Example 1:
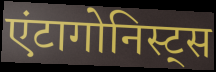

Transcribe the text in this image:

एंटागोनिस्ट्स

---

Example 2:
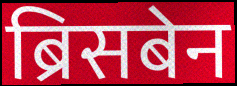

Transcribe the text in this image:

ब्रिसबेन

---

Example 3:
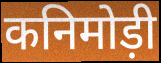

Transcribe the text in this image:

कनिमोड़ी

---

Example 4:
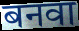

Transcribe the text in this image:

बनवा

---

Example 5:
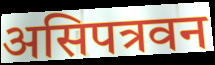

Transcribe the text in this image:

असिपत्रवन